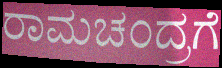
ರಾಮಚಂದ್ರಗೆ